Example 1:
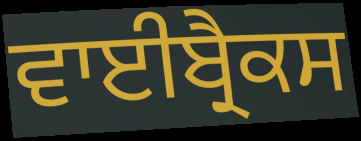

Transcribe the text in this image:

ਵਾਈਬ੍ਰੈਕਸ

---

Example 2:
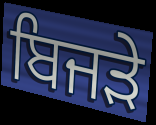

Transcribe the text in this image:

ਬਿਜੜੇ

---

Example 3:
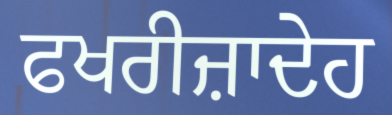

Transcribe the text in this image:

ਫਖਰੀਜ਼ਾਦੇਹ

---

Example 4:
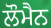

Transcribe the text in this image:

ਲੌਮੈਨ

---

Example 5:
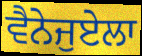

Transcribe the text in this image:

ਵੈਨੇਜੁਏਲਾ